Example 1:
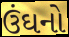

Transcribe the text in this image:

ઉંઘનો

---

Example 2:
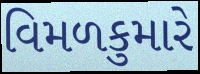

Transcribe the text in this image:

વિમળકુમારે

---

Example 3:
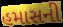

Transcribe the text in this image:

હમાસની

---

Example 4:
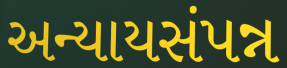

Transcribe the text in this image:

અન્યાયસંપન્ન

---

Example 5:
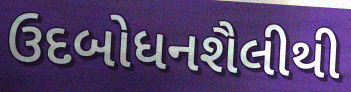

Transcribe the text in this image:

ઉદબોધનશૈલીથી